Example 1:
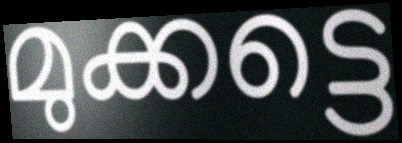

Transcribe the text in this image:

മുക്കട്ടെ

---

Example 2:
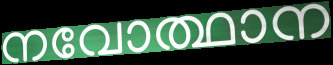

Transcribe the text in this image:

നവോത്ഥാന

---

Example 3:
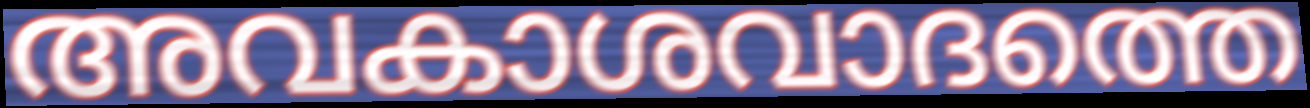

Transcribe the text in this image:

അവകാശവാദത്തെ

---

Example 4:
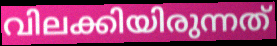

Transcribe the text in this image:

വിലക്കിയിരുന്നത്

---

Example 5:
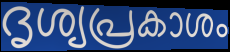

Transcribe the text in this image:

ദൃശ്യപ്രകാശം